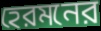
হেরমনের